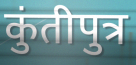
कुंतीपुत्र